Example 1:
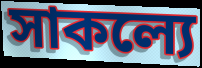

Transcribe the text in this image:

সাকল্যে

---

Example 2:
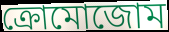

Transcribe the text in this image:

ক্রোমোজোম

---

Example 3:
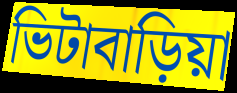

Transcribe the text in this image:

ভিটাবাড়িয়া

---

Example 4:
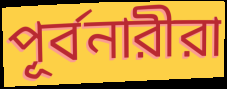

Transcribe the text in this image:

পূর্বনারীরা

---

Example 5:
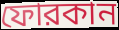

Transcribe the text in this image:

ফোরকান